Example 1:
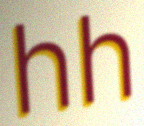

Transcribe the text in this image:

hh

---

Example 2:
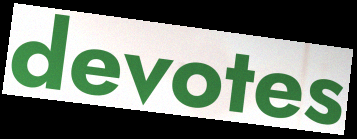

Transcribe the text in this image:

devotes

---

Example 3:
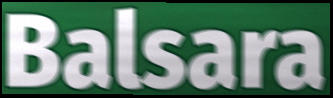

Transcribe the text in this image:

Balsara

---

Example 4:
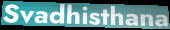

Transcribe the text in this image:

Svadhisthana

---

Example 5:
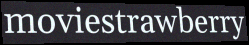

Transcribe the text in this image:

moviestrawberry